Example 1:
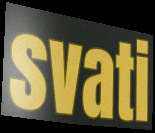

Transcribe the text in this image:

svati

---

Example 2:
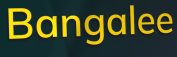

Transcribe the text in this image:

Bangalee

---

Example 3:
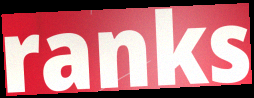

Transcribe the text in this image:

ranks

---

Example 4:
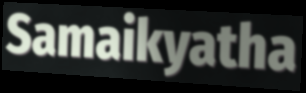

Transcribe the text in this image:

Samaikyatha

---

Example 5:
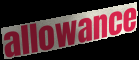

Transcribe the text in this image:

allowance